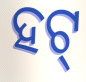
ହଟ୍